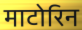
माटोरिन